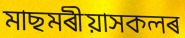
মাছমৰীয়াসকলৰ